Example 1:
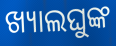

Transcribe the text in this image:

ଖ୍ୟାଲଘୁଙ୍କ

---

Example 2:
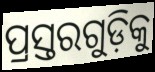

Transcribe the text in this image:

ପ୍ରସ୍ତରଗୁଡ଼ିକୁ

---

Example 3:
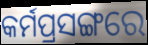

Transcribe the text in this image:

କର୍ମପ୍ରସଙ୍ଗରେ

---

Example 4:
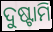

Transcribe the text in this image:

ଦୁଷ୍ଟାମି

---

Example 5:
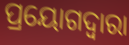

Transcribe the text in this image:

ପ୍ରୟୋଗଦ୍ଵାରା